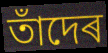
তাঁদেৰ